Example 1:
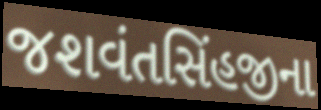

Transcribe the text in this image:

જશવંતસિંહજીના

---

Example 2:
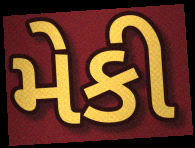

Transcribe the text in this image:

મેકી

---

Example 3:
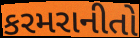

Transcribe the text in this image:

કરમરાનીતો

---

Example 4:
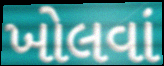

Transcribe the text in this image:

ખોલવાં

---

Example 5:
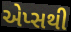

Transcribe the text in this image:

એપ્સથી